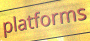
platforms